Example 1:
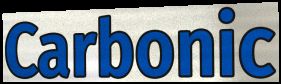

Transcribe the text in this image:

Carbonic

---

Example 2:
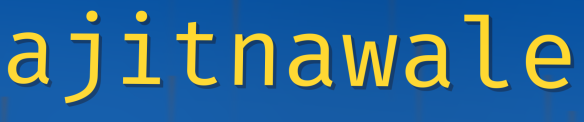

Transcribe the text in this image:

ajitnawale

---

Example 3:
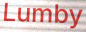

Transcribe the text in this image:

Lumby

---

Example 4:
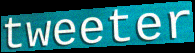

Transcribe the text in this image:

tweeter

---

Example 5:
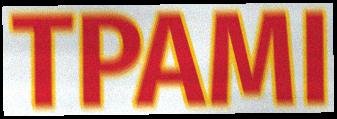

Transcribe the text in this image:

TPAMI